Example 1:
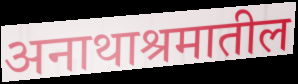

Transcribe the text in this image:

अनाथाश्रमातील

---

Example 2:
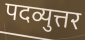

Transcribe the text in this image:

पदव्युत्तर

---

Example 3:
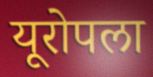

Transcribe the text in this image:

यूरोपला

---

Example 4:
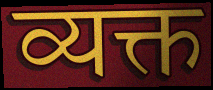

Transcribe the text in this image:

व्यक्त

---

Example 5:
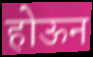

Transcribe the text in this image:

होऊन